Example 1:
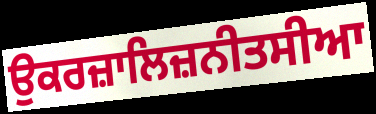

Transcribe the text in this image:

ਉਕਰਜ਼ਾਲਿਜ਼ਨੀਤਸੀਆ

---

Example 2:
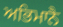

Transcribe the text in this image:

ਅਭਿਮਾਨੈ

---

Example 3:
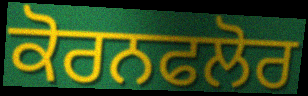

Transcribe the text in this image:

ਕੋਰਨਫਲੋਰ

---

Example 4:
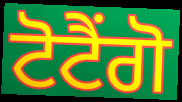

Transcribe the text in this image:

ਟੋਟੈਂਗੋ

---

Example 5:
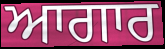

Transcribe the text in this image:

ਆਗਾਰ